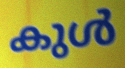
കുൾ